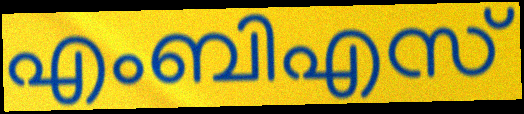
എംബിഎസ്